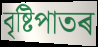
বৃষ্টিপাতৰ